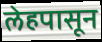
लेहपासून